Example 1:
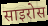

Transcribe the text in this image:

साइरोस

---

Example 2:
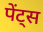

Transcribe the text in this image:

पेंट्स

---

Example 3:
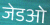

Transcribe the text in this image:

जेडओ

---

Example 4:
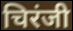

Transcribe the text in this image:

चिरंजी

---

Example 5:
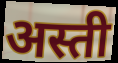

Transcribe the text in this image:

अस्ती